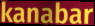
kanabar